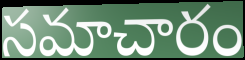
సమాచారం